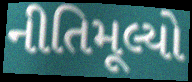
નીતિમૂલ્યો